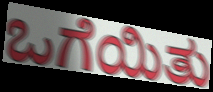
ಒಗೆಯಿತು